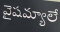
వైషమ్యాలే